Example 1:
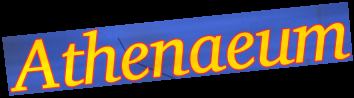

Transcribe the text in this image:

Athenaeum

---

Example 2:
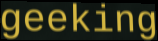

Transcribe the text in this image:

geeking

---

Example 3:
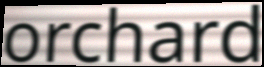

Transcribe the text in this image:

orchard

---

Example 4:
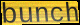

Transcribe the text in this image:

bunch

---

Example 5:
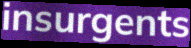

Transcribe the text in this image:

insurgents